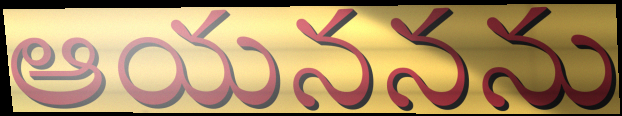
ఆయననను